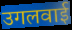
उगलवाई